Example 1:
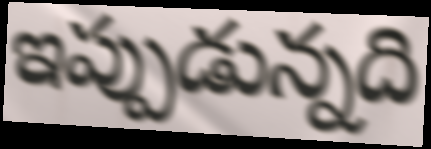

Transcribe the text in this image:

ఇప్పుడున్నది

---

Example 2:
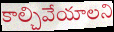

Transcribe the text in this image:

కాల్చివేయాలని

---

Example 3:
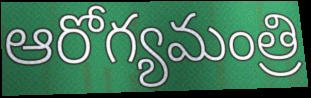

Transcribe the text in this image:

ఆరోగ్యమంత్రి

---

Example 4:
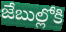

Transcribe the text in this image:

జేబుల్లోకి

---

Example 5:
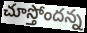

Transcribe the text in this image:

చూస్తోందన్న